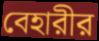
বেহারীর